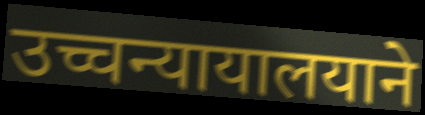
उच्चन्यायालयाने